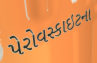
પેરોવસ્કાઇટના